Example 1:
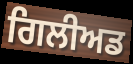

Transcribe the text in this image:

ਗਿਲੀਅਡ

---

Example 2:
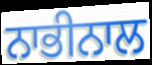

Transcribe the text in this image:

ਨਾਭੀਨਾਲ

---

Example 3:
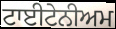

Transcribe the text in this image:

ਟਾਈਟੇਨੀਅਮ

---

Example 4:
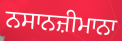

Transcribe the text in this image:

ਨਸਾਨਜ਼ੀਮਾਨਾ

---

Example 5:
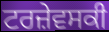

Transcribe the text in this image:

ਟਰਜ਼ੇਵਸਕੀ